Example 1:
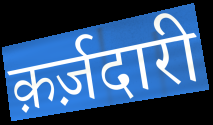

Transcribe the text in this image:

क़र्ज़दारी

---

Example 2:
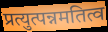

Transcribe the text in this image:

प्रत्युत्पन्नमतित्व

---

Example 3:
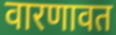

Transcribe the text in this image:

वारणावत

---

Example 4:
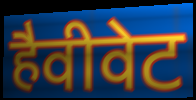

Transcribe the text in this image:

हैवीवेट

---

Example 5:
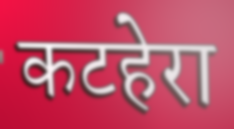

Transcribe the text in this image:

कटहेरा